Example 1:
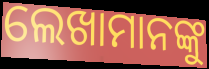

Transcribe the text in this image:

ଲେଖାମାନଙ୍କୁ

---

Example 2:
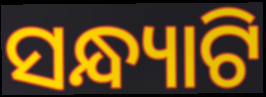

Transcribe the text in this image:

ସନ୍ଧ୍ୟାଟି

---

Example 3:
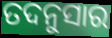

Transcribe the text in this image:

ତଦନୁସାର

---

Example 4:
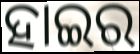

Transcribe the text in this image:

ହାଇର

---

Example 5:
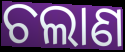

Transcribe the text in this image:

ଚଲାଣ